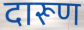
दारूण